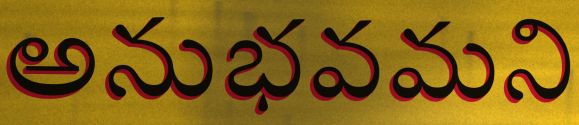
అనుభవమని